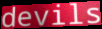
devils